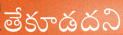
తేకూడదని